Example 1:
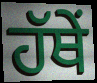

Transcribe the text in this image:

ਹੱਥੇਂ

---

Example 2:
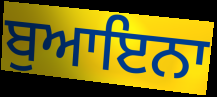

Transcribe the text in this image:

ਬੁਆਇਨਾ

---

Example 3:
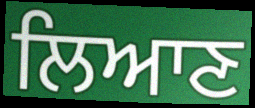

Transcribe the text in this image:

ਲਿਆਣ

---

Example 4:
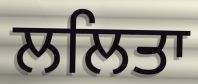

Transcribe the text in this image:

ਲਲਿਤਾ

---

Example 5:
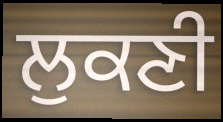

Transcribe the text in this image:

ਲੁਕਣੀ